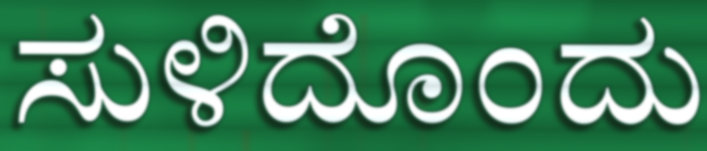
ಸುಳಿದೊಂದು